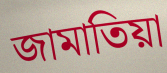
জামাতিয়া